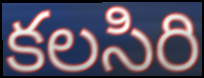
కలసిరి